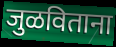
जुळविताना